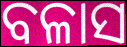
ବଳାସ